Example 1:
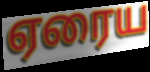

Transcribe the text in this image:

ஏரைய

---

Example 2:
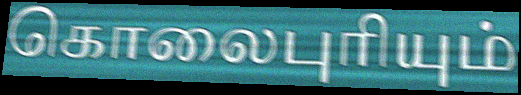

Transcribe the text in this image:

கொலைபுரியும்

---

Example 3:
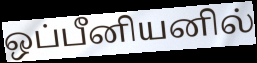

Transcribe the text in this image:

ஒப்பீனியனில்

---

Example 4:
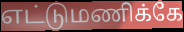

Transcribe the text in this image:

எட்டுமணிக்கே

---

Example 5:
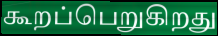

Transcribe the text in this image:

கூறப்பெறுகிறது